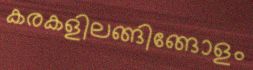
കരകളിലങ്ങിങ്ങോളം